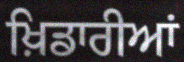
ਖ਼ਿਡਾਰੀਆਂ